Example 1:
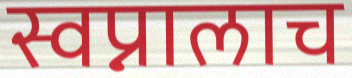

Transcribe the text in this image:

स्वप्नालाच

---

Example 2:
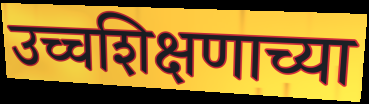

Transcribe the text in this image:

उच्चशिक्षणाच्या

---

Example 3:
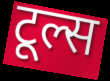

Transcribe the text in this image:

टूल्स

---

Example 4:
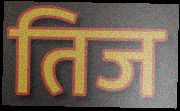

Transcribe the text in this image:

तिज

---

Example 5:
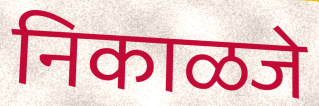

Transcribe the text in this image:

निकाळजे